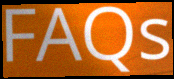
FAQs